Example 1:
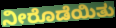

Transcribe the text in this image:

ನೀರೊಡೆಯಿತು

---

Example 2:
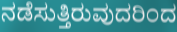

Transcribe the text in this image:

ನಡೆಸುತ್ತಿರುವುದರಿಂದ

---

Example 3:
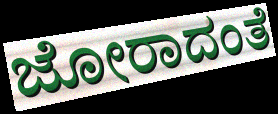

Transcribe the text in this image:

ಜೋರಾದಂತೆ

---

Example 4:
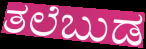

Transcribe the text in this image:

ತಲೆಬುಡ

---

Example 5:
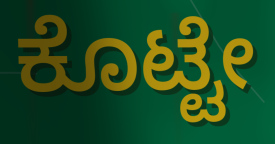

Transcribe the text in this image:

ಕೊಟ್ಟೇ